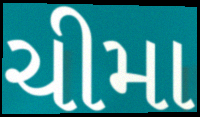
ચીમા